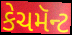
કેચમૅન્ટ